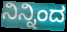
ನಿನ್ನಿಂದ